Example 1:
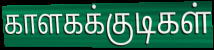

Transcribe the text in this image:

காளகக்குடிகள்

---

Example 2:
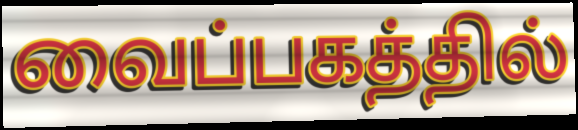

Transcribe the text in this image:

வைப்பகத்தில்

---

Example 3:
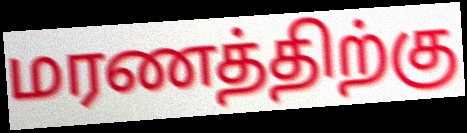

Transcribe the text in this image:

மரணத்திற்கு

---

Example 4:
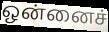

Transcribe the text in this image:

ஒன்னைச்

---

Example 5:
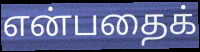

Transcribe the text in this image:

என்பதைக்